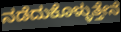
ನಡೆದುಕೊಳ್ಳುತ್ತೇನೆ